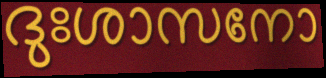
ദുഃശാസനോ